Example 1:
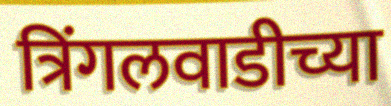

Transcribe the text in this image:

त्रिंगलवाडीच्या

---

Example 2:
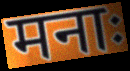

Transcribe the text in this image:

मनाः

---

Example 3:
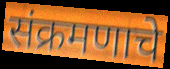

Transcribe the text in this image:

संक्रमणाचे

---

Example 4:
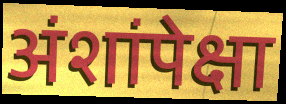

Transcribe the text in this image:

अंशांपेक्षा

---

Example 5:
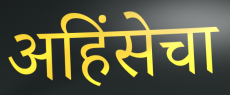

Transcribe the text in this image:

अहिंसेचा